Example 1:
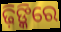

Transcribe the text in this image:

ଢ଼ିଙ୍କିରେ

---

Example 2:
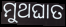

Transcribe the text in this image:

ମୁଥଘାତ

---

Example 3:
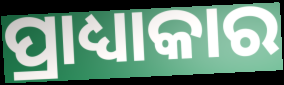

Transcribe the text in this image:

ପ୍ରାଧ୍ୟାକାର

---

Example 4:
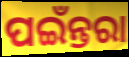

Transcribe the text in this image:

ପଇଁନ୍ତରା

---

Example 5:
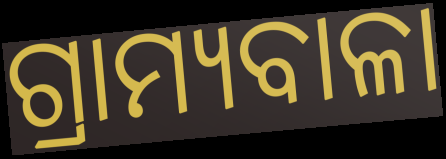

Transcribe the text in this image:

ଗ୍ରାମ୍ୟବାଳା